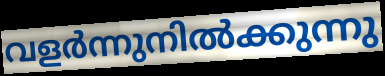
വളർന്നുനിൽക്കുന്നു